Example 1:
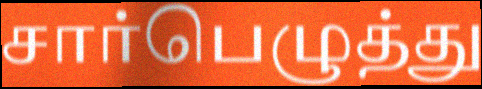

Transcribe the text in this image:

சார்பெழுத்து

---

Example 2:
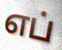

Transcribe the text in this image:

எப்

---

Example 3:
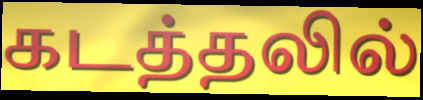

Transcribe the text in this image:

கடத்தலில்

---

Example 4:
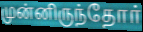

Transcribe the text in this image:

முன்னிருந்தோர்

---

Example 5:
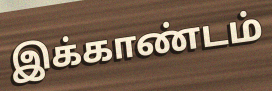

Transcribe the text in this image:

இக்காண்டம்